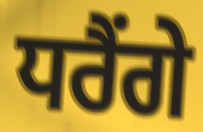
ਧਰੈਂਗੇ